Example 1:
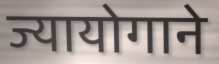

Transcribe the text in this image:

ज्यायोगाने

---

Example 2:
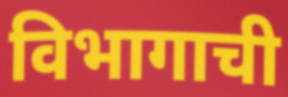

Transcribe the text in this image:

विभागाची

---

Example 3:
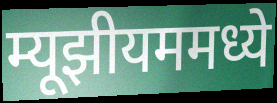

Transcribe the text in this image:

म्यूझीयममध्ये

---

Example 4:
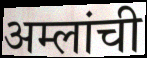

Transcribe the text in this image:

अम्‍लांची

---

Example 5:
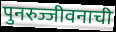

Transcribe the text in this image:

पुनरुज्जीवनाची